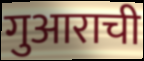
गुआराची